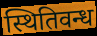
स्थितिवन्ध